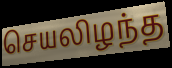
செயலிழந்த